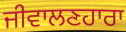
ਜੀਵਾਲਣਹਾਰਾ